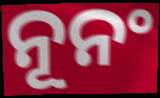
ନୂନଂ